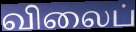
விலைப்